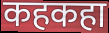
कहकहा